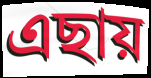
এছায়